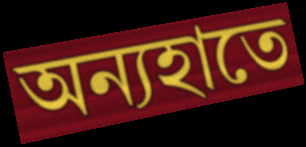
অন্যহাতে